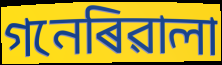
গনেৰিৱালা